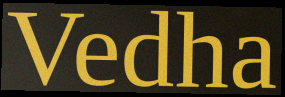
Vedha